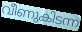
വീണുകിടന്ന